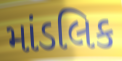
માંડલિક